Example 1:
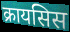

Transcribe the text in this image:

क्रायसिस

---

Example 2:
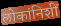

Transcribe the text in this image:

लोकांनिशीं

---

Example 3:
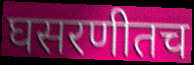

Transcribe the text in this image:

घसरणीतच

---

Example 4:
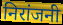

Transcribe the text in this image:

निरांजनी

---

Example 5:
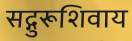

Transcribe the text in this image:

सद्गुरूशिवाय